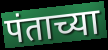
पंताच्या